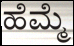
ಹೆಮ್ಮೆ